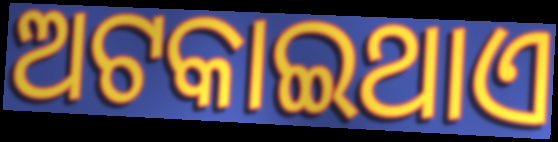
ଅଟକାଇଥାଏ